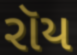
રૉય